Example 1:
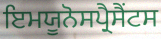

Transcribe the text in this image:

ਇਮਯੂਨੋਸਪ੍ਰੈਸੈਂਟਸ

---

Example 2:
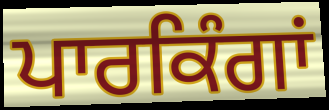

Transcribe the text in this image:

ਪਾਰਕਿੰਗਾਂ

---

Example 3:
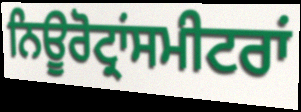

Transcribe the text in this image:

ਨਿਊਰੋਟ੍ਰਾਂਸਮੀਟਰਾਂ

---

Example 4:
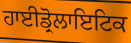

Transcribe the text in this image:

ਹਾਈਡ੍ਰੋਲਾਇਟਿਕ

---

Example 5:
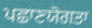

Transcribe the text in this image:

ਪਛਾਣਯੋਗਤਾ